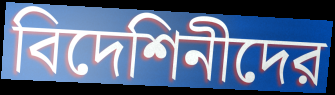
বিদেশিনীদের